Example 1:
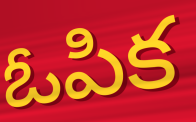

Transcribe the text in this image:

ఓపిక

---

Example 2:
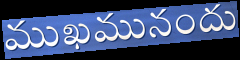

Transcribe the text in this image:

ముఖమునందు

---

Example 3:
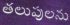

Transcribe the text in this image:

తలుపులను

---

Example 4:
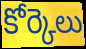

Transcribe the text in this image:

కోర్కెలు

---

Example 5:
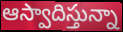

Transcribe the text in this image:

ఆస్వాదిస్తున్నా